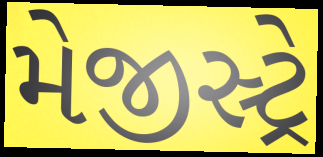
મેજીસ્ર્ટ્રે